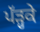
ਪੱੜ੍ਹਕੇ